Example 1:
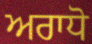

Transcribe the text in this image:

ਅਰਾਧੋ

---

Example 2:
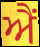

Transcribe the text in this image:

ਐਂ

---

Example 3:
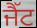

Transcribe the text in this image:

ਜੈੱਟ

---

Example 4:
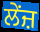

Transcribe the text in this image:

ਲੇਂਜ਼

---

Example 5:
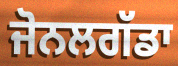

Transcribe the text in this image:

ਜੋਨਲਗੱਡਾ